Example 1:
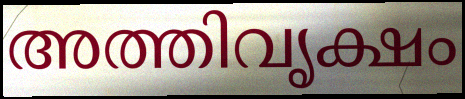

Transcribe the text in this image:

അത്തിവൃക്ഷം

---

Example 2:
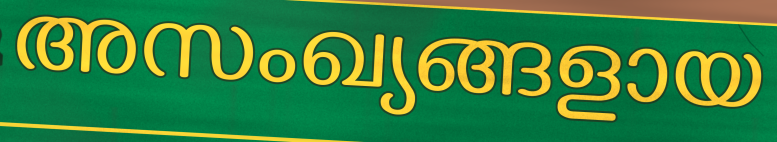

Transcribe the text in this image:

അസംഖ്യങ്ങളായ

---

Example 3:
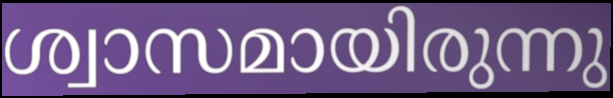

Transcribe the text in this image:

ശ്വാസമായിരുന്നു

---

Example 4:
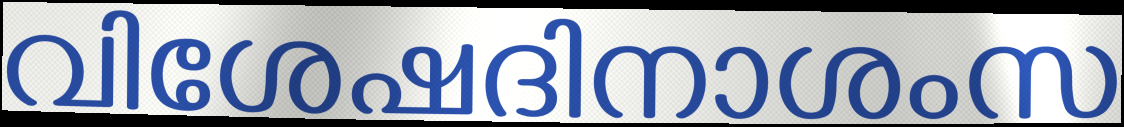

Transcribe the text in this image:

വിശേഷദിനാശംസ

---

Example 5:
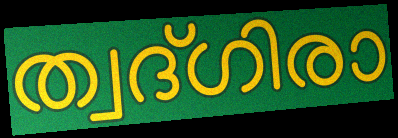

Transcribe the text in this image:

ത്വദ്ഗിരാ